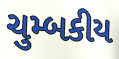
ચુમ્બકીય